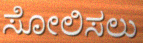
ಸೋಲಿಸಲು